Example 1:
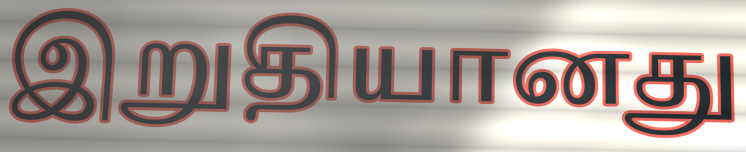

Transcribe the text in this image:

இறுதியானது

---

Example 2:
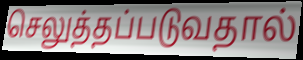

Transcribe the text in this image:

செலுத்தப்படுவதால்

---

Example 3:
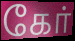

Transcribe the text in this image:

கேர்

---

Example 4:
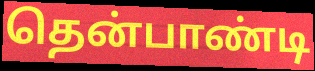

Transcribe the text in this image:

தென்பாண்டி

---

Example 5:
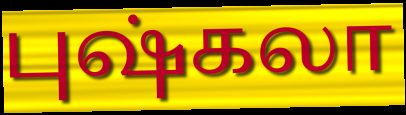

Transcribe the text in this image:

புஷ்கலா